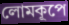
লোমকূপে